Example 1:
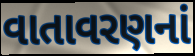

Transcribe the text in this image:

વાતાવરણનાં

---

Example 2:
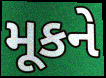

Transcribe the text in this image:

મૂકને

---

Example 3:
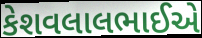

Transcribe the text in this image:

કેશવલાલભાઈએ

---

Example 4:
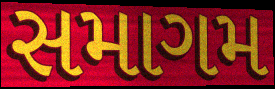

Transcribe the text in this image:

સમાગમ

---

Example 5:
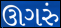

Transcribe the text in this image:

ઊગરું